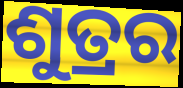
ଶୁତ୍ରର